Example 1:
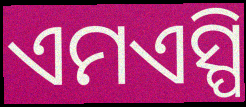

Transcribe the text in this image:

ଏମଏସ୍ପି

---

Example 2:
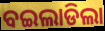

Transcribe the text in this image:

ବଇଲାଡିଲା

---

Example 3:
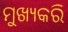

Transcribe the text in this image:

ମୁଖ୍ୟକରି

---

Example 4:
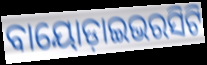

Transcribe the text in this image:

ବାୟୋଡ଼ାଇଭରସିଟି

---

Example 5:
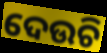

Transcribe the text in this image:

ଦେଉଚି